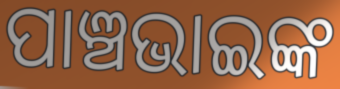
ପାଞ୍ଚଭାଇଙ୍କ